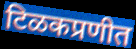
टिळकप्रणीत